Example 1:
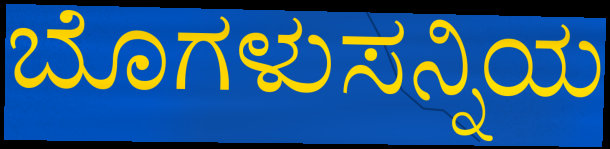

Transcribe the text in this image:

ಬೊಗಳುಸನ್ನಿಯ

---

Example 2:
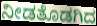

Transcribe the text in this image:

ನೀಡತೊಡಗಿದ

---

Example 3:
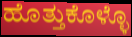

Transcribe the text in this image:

ಹೊತ್ತುಕೊಳ್ಳೊ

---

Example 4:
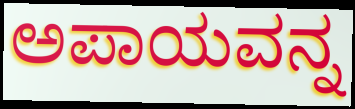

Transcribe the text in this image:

ಅಪಾಯವನ್ನ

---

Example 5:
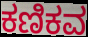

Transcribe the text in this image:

ಕಣಿಕವ